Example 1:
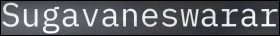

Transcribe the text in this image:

Sugavaneswarar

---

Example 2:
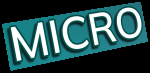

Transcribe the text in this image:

MICRO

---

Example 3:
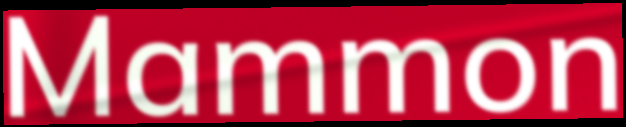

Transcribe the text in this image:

Mammon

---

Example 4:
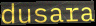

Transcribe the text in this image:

dusara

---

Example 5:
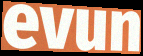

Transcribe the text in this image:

evun